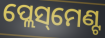
ପ୍ଲେସ୍‌ମେଣ୍ଟ